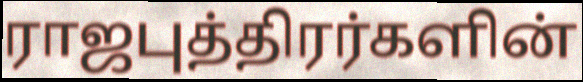
ராஜபுத்திரர்களின்